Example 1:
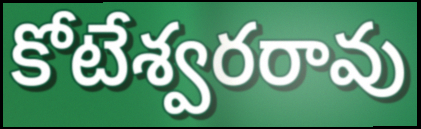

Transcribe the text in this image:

కోటేశ్వరరావు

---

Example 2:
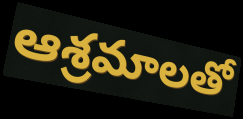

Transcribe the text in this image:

ఆశ్రమాలతో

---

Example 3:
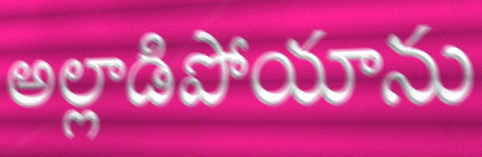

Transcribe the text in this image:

అల్లాడిపోయాను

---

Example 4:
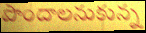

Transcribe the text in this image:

పొందాలనుకున్న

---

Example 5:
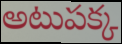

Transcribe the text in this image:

అటుపక్క